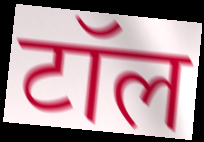
टॉल